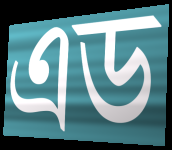
এড